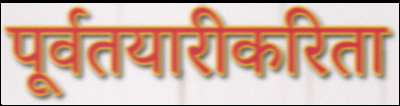
पूर्वतयारीकरिता